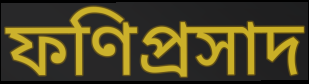
ফণিপ্রসাদ